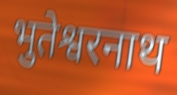
भुतेश्वरनाथ